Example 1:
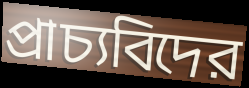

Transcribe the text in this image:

প্রাচ্যবিদের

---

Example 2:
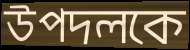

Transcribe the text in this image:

উপদলকে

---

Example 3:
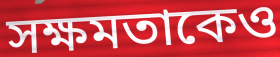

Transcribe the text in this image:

সক্ষমতাকেও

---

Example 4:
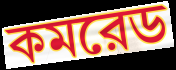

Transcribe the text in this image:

কমরেড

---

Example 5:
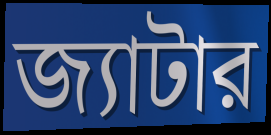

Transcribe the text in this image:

জ্যাটার